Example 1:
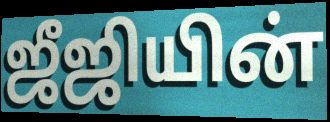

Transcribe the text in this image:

ஜீஜியின்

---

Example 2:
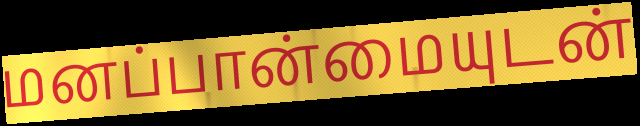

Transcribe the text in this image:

மனப்பான்மையுடன்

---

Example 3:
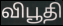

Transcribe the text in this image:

விபூதி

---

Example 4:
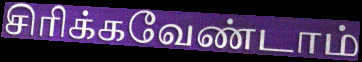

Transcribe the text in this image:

சிரிக்கவேண்டாம்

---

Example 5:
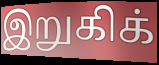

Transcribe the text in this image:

இறுகிக்